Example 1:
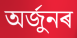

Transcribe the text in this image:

অৰ্জুনৰ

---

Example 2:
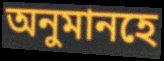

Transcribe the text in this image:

অনুমানহে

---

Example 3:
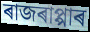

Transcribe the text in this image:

ৰাজৰাপ্পাৰ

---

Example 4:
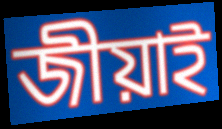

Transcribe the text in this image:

জীয়াই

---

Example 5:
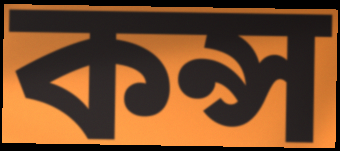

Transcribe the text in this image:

কন্স